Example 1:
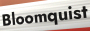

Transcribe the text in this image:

Bloomquist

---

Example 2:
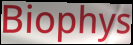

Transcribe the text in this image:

Biophys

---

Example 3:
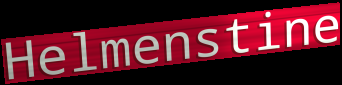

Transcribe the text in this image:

Helmenstine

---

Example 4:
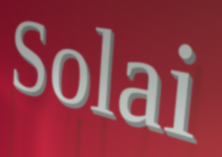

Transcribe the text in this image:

Solai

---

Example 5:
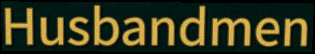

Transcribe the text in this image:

Husbandmen